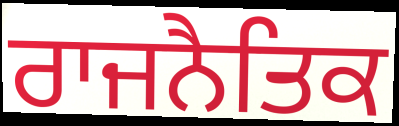
ਰਾਜਨੈਤਿਕ